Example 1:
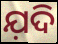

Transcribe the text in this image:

ଯ଼ଦି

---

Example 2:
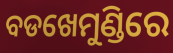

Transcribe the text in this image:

ବଡଖେମୁଣ୍ଡିରେ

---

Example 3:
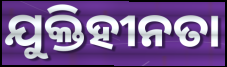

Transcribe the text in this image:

ଯୁକ୍ତିହୀନତା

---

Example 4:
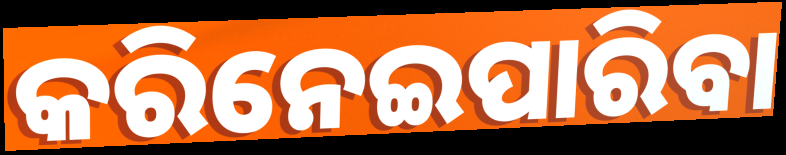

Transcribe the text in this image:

କରିନେଇପାରିବା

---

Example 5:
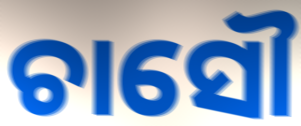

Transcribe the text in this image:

ଚାସୌ